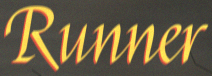
Runner